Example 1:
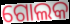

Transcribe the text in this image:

ଗୋଲକ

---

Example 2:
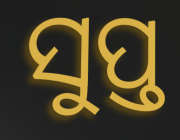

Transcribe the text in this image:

ସୁପ୍ତ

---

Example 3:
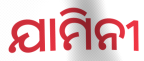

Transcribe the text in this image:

ଯାମିନୀ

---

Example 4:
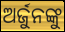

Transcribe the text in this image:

ଅର୍ଜୁନଙ୍କୁ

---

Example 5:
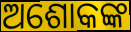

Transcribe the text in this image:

ଅଶୋକଙ୍କ